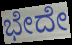
ಭೇದೇ